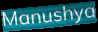
Manushya